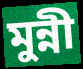
মুন্নী